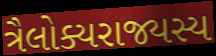
ત્રૈલોક્યરાજ્યસ્ય